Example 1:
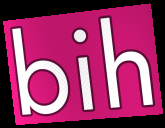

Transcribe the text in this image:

bih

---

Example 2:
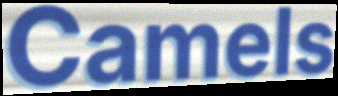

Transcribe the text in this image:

Camels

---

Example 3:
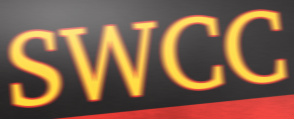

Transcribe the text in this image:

SWCC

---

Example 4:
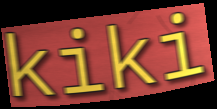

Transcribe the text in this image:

kiki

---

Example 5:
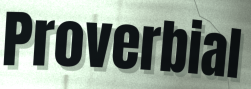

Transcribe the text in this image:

Proverbial